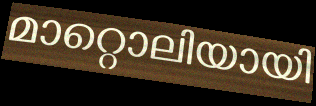
മാറ്റൊലിയായി